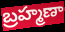
బ్రహ్మణా